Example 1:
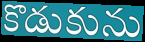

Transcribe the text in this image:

కొడుకును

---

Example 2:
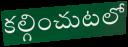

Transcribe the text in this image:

కల్గించుటలో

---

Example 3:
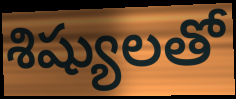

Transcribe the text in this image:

శిష్యులతో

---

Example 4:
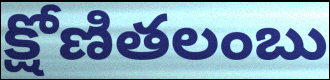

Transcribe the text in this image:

క్షోణితలంబు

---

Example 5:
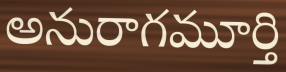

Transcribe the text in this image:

అనురాగమూర్తి